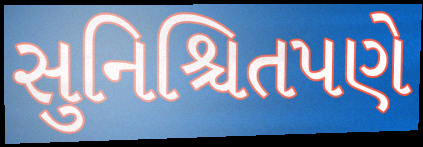
સુનિશ્ચિતપણે